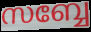
സബ്ബേ